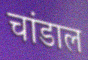
चांडाल